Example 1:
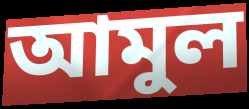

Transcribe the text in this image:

আমুল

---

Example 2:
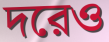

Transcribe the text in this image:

দরেও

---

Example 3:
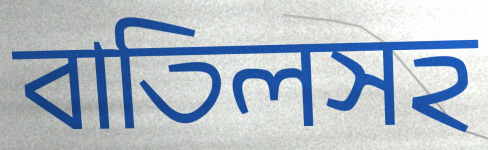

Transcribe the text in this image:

বাতিলসহ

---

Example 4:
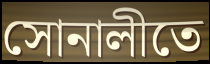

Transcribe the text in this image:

সোনালীতে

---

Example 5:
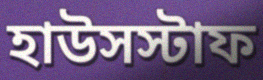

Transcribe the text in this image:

হাউসস্টাফ